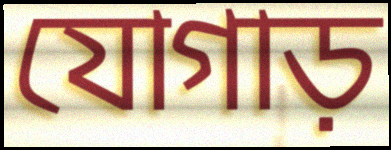
যোগাড়